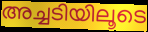
അച്ചടിയിലൂടെ